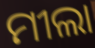
ମୀଲା